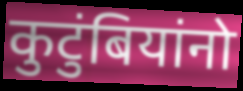
कुटुंबियांनो